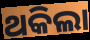
ଥକିଲା